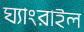
ঘ্যাংরাইল